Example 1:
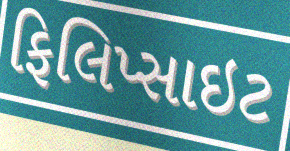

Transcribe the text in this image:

ફિલિપ્સાઇટ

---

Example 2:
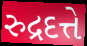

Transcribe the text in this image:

રુદ્રદત્તે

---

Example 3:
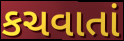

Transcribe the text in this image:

કચવાતાં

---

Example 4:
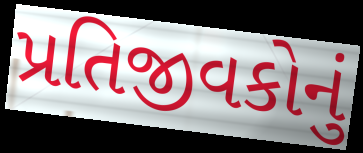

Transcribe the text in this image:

પ્રતિજીવકોનું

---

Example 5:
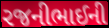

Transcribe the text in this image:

રજનીભાઈની